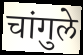
चांगुले